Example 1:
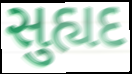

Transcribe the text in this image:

સુહ્યદ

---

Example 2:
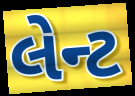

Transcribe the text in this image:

લેન્ટ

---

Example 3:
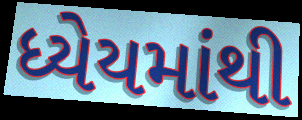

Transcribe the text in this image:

ધ્યેયમાંથી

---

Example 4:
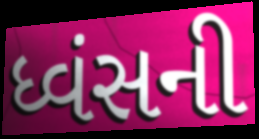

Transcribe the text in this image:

ધ્વંસની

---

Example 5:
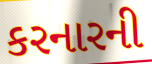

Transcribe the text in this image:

કરનારની